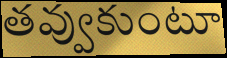
తవ్వుకుంటూ